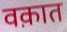
वक़ात